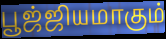
பூஜ்ஜியமாகும்